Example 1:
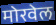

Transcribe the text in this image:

मोरवेल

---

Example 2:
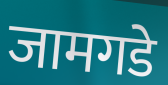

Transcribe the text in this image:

जामगडे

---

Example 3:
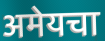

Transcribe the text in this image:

अमेयचा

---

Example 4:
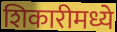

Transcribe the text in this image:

शिकारीमध्ये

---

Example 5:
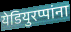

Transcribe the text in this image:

येडियुरप्पांना